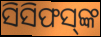
ସିସିଫସ୍‌ଙ୍କ